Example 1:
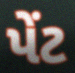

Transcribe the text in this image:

પેંટ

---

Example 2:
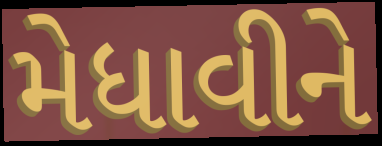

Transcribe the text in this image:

મેધાવીને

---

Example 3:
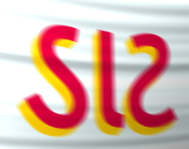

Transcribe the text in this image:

ડાટ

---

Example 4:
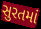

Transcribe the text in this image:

સુરતમાં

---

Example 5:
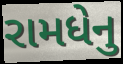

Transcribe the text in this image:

રામધેનુ